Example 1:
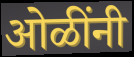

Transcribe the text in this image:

ओळींनी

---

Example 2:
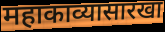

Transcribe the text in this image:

महाकाव्यासारखा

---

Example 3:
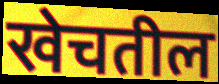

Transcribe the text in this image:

खेचतील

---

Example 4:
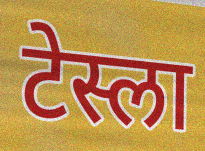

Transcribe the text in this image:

टेस्ला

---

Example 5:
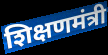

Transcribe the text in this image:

शिक्षणमंत्री